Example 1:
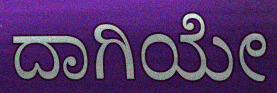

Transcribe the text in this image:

ದಾಗಿಯೇ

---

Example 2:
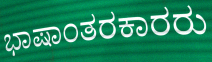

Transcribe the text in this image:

ಭಾಷಾಂತರಕಾರರು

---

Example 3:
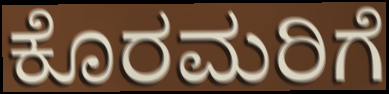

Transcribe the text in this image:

ಕೊರಮರಿಗೆ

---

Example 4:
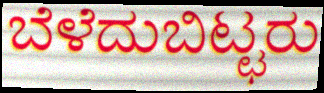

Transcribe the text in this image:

ಬೆಳೆದುಬಿಟ್ಟರು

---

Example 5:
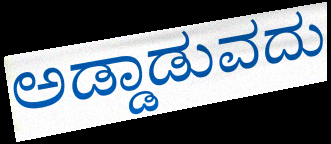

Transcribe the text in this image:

ಅಡ್ಡಾಡುವದು